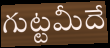
గుట్టమీదే